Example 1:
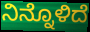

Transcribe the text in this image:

ನಿನ್ನೊಳಿದೆ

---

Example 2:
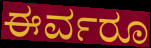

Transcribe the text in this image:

ಈರ್ವರೂ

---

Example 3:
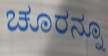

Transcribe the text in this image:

ಚೂರನ್ನೂ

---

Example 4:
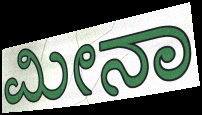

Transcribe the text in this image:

ಮೀನಾ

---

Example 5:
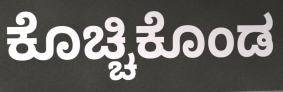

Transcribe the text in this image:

ಕೊಚ್ಚಿಕೊಂಡ